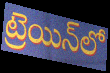
ట్రెయిన్‌లో